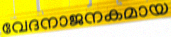
വേദനാജനകമായ